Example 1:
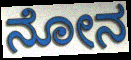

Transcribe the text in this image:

ನೋನ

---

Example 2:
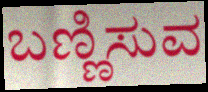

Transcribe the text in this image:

ಬಣ್ಣಿಸುವ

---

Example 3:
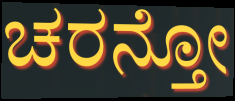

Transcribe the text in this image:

ಚರನ್ತೋ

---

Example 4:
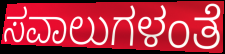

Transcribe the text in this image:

ಸವಾಲುಗಳಂತೆ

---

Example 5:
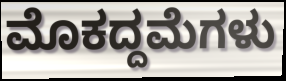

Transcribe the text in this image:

ಮೊಕದ್ದಮೆಗಳು